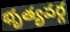
భృత్యవర్గ